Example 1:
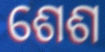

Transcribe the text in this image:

ଶେଶ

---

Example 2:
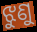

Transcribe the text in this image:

ଝୁଣୁ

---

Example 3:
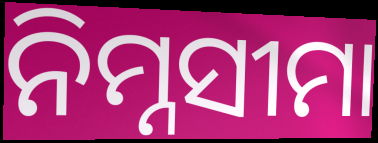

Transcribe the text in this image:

ନିମ୍ନସୀମା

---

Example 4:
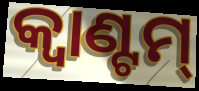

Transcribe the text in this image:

କ୍ଵାଣ୍ଟମ୍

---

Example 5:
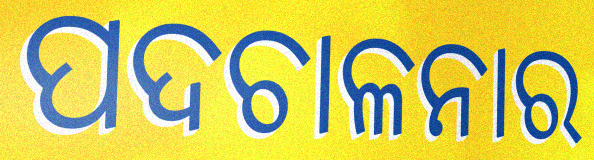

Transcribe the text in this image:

ପଦଚାଳନାର